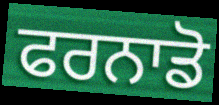
ਫਰਨਾਡੋ